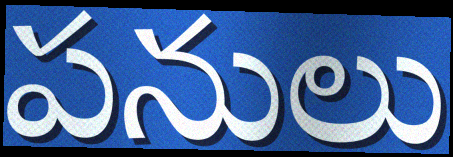
పనులు